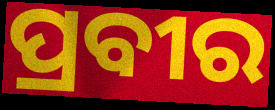
ପ୍ରବୀର